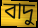
বাদু